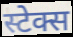
स्टेक्स